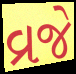
વ્રજે